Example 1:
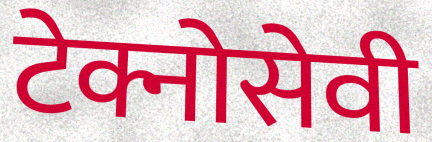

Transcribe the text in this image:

टेक्नोसेवी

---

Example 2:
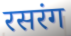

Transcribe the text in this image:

रसरंग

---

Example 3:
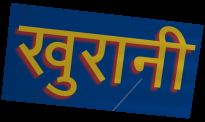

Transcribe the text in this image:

खुरानी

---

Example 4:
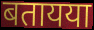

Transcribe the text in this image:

बतायया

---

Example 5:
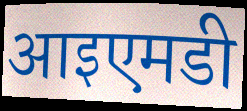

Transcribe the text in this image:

आइएमडी